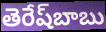
తెరేష్‌బాబు